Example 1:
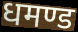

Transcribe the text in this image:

धमण्ड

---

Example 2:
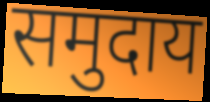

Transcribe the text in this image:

समुदाय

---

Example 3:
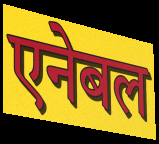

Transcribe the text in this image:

एनेबल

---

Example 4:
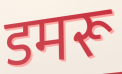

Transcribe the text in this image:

डमरू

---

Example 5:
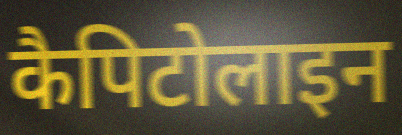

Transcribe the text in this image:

कैपिटोलाइन